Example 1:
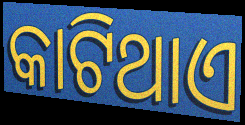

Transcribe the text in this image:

କାଟିଥାଏ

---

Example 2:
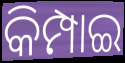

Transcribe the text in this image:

କିମ୍ପାଇ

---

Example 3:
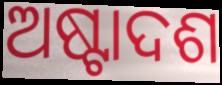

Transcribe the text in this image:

ଅଷ୍ଟାଦଶ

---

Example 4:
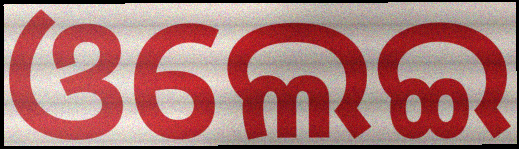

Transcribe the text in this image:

ଓଲେଇ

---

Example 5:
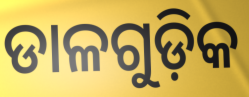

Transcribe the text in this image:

ଡାଳଗୁଡ଼ିକ